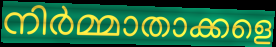
നിർമ്മാതാക്കളെ